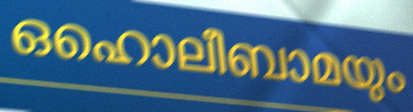
ഒഹൊലീബാമയും